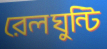
রেলঘুন্টি